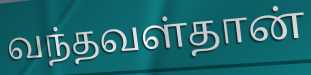
வந்தவள்தான்